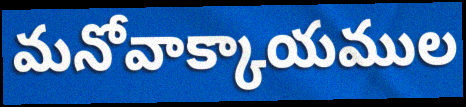
మనోవాక్కాయముల